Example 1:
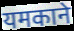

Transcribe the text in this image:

यमकाने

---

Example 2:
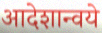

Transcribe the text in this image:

आदेशान्वये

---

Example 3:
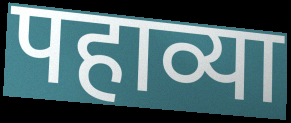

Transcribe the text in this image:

पहाव्या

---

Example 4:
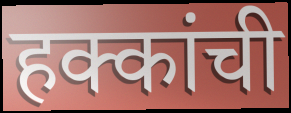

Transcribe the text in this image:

हक्कांची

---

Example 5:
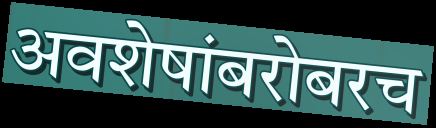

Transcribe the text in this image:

अवशेषांबरोबरच